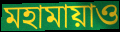
মহামায়াও